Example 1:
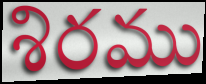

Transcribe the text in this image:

శిరము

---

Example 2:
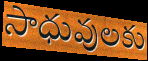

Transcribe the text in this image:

సాధువులకు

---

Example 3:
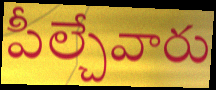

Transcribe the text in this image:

పీల్చేవారు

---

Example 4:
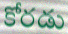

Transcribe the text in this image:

కోరడు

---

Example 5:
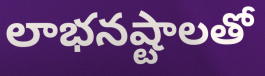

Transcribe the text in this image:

లాభనష్టాలతో